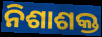
ନିଶାଶକ୍ତ